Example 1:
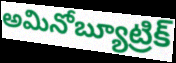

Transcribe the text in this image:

అమినోబ్యూట్రిక్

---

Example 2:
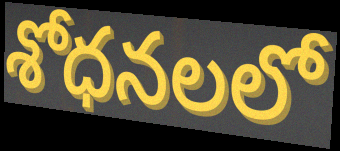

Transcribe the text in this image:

శోధనలలో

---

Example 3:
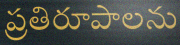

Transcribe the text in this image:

ప్రతిరూపాలను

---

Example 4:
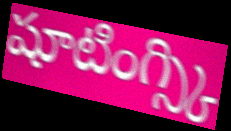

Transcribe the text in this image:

షూటింగ్స్కి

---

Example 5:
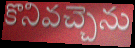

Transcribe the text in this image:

కొనివచ్చెను